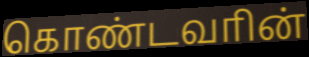
கொண்டவரின்